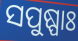
ସପୁଷ୍ପାଃ